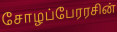
சோழப்பேரரசின்